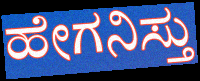
ಹೇಗನಿಸ್ತು